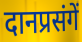
दानप्रसंगें